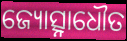
ଜ୍ୟୋତ୍ସ୍ନାଧୌତ